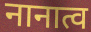
नानात्व